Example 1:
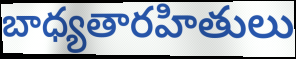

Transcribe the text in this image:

బాధ్యతారహితులు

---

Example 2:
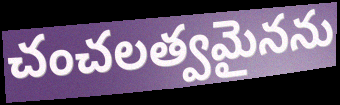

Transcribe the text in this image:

చంచలత్వమైనను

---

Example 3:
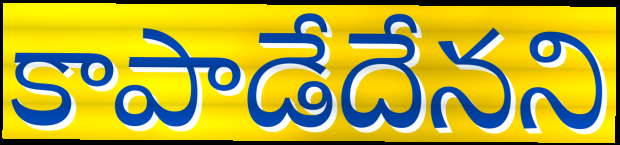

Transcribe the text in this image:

కాపాడేదేనని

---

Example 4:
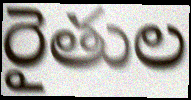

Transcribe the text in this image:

రైతుల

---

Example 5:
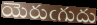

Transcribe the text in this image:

యెరుఁగుదు